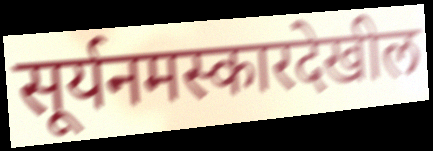
सूर्यनमस्कारदेखील